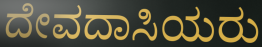
ದೇವದಾಸಿಯರು